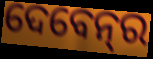
ଦେବେନ୍‌ର